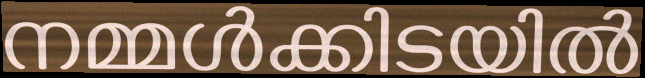
നമ്മൾക്കിടയിൽ